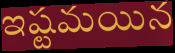
ఇష్టమయిన